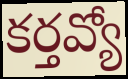
కర్తవ్యో